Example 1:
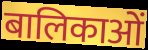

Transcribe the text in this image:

बालिकाओं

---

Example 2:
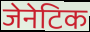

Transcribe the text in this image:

जेनेटिक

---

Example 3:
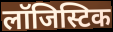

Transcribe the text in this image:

लॉजिस्टिक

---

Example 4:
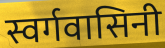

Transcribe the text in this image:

स्वर्गवासिनी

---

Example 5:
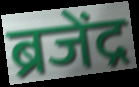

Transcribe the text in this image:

ब्रजेंद्र